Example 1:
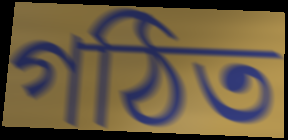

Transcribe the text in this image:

গঠিত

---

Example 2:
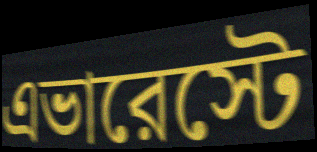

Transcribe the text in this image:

এভারেস্টে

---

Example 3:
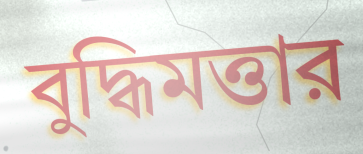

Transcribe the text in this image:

বুদ্ধিমত্তার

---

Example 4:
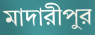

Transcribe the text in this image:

মাদারীপুর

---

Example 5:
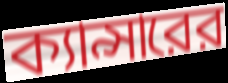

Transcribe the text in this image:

ক্যান্সারের